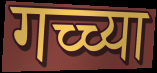
गच्च्या